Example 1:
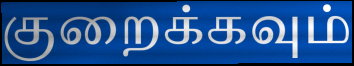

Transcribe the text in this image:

குறைக்கவும்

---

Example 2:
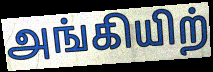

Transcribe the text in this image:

அங்கியிற்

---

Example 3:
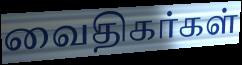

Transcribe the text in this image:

வைதிகர்கள்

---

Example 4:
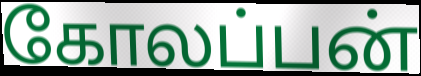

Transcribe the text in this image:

கோலப்பன்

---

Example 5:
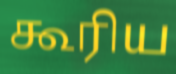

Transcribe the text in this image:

கூரிய